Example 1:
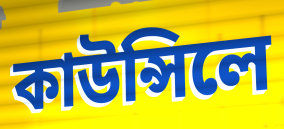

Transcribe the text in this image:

কাউন্সিলে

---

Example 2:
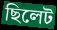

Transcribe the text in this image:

ছিলেট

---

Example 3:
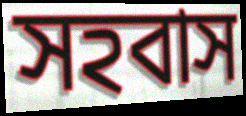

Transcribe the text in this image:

সহবাস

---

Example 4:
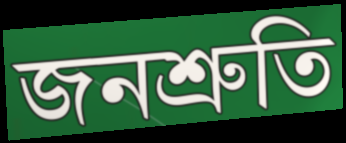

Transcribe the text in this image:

জনশ্ৰুতি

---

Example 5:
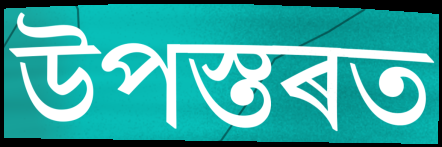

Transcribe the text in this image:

উপস্তৰত